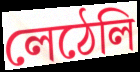
লেঠেলি